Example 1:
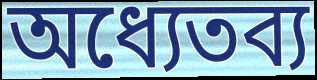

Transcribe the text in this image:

অধ্যেতব্য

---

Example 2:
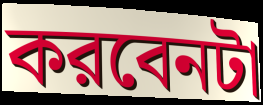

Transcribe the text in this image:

করবেনটা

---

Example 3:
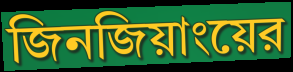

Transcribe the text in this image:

জিনজিয়াংয়ের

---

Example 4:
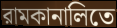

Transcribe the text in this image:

রামকানালিতে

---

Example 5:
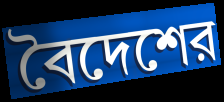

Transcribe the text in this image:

বৈদেশের